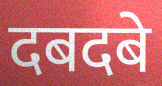
दबदबे